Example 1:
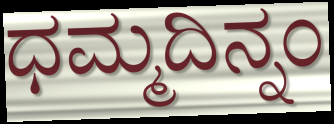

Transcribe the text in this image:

ಧಮ್ಮದಿನ್ನಂ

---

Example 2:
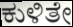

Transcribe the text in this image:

ಕುಳಿತೇ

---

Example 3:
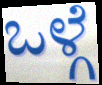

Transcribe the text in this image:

ಒಳ್ಗೆ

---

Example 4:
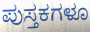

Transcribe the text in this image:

ಪುಸ್ತಕಗಳೂ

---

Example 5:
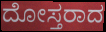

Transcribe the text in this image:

ದೋಸ್ತರಾದ